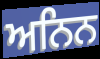
ਅਨਿਨ